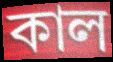
কাল